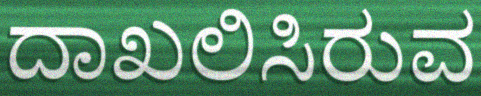
ದಾಖಲಿಸಿರುವ